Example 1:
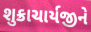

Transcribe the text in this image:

શુક્રાચાર્યજીને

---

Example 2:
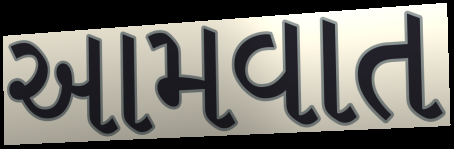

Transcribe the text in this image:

આમવાત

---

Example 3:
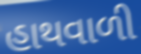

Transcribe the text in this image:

હાથવાળી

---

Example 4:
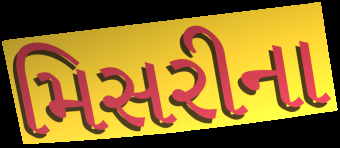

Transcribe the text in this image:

મિસરીના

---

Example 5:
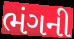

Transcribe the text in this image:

ભંગની